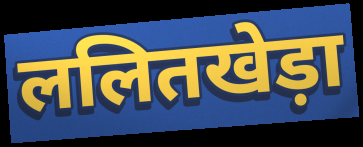
ललितखेड़ा